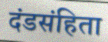
दंडसंहिता